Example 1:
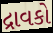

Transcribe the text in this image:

દ્રાવકો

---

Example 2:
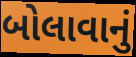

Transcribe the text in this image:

બોલાવાનું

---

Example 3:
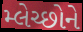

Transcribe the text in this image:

મ્લેચ્છોને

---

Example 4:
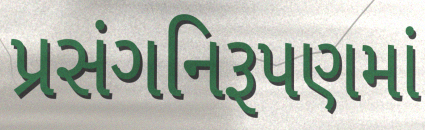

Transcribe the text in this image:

પ્રસંગનિરૂપણમાં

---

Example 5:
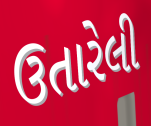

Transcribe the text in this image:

ઉતારેલી